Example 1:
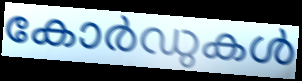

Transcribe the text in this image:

കോർഡുകൾ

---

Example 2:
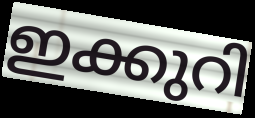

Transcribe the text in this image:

ഇക്കുറി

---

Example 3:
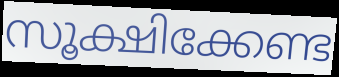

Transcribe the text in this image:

സൂക്ഷിക്കേണ്ട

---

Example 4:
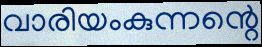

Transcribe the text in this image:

വാരിയംകുന്നന്റെ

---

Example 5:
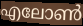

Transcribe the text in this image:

എലോൺ